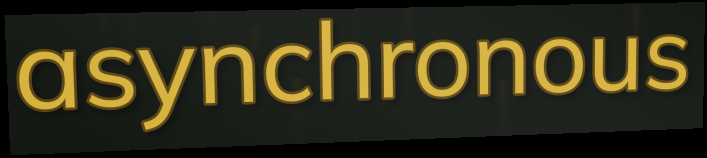
asynchronous